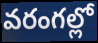
వరంగల్లో